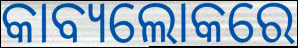
କାବ୍ୟଲୋକରେ